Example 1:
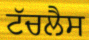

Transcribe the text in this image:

ਟੱਚਲੈਸ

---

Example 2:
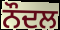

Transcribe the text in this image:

ਨੌਦਲ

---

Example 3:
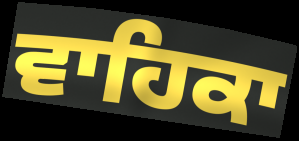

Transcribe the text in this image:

ਵਾਹਿਕਾ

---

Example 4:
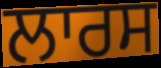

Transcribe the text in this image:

ਲਾਰਸ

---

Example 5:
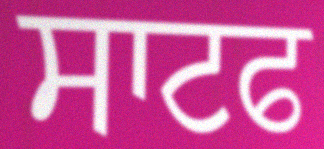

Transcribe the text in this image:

ਸਾਟਫ